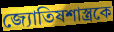
জ্যোতিষশাস্ত্রকে